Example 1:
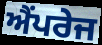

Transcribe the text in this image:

ਐਂਪਰੇਜ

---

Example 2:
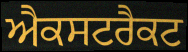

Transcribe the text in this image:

ਐਕਸਟਰੈਕਟ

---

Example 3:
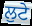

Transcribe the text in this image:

ਲੁਟੇ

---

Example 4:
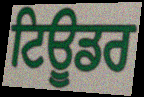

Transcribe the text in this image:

ਟਿਊਡਰ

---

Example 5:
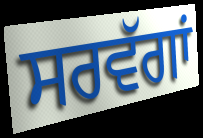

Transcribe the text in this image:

ਸਰਵੱਗਾਂ